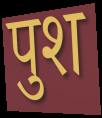
पुश